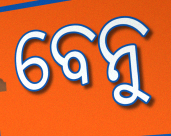
ବେନୁ